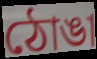
ঠোঙা